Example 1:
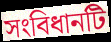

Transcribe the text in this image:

সংবিধানটি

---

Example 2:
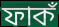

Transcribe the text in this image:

ফাকঁ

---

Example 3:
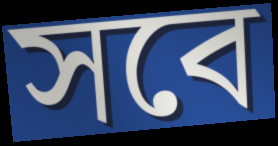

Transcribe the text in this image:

সবে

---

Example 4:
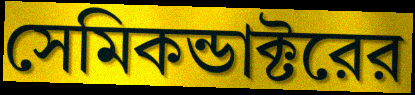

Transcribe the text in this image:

সেমিকন্ডাক্টরের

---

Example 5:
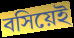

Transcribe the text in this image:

বসিয়েই